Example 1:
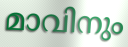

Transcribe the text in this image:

മാവിനും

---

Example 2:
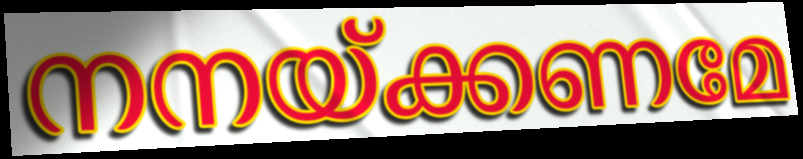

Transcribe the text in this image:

നനയ്ക്കണമേ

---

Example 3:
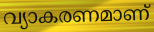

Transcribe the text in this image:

വ്യാകരണമാണ്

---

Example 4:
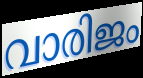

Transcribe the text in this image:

വാരിജം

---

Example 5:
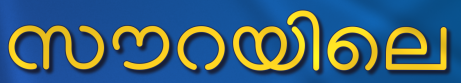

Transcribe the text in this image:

സൗറയിലെ